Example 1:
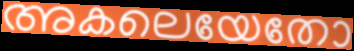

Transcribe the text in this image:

അകലെയേതോ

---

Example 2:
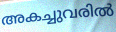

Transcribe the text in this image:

അകച്ചുവരിൽ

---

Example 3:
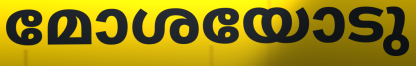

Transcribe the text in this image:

മോശയോടു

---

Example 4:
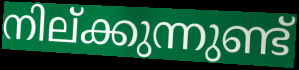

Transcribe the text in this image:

നില്ക്കുന്നുണ്ട്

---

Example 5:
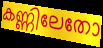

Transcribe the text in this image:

കണ്ണിലേതോ